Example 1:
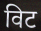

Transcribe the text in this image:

विट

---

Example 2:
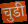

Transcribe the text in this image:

चुडी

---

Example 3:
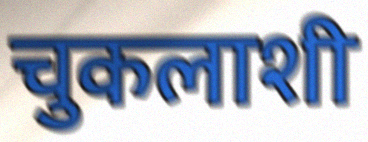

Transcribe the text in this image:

चुकलाशी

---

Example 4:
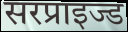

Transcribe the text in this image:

सरप्राइज्ड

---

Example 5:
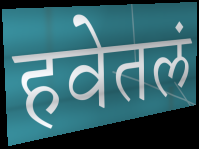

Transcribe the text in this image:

हवेतलं